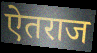
ऐतराज